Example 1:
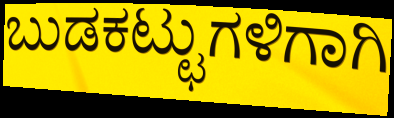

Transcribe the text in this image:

ಬುಡಕಟ್ಟುಗಳಿಗಾಗಿ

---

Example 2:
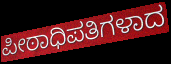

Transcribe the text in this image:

ಪೀಠಾಧಿಪತಿಗಳಾದ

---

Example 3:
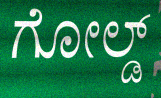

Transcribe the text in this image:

ಗೋಲ್ಡ್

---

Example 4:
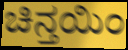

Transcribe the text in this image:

ಚಿನ್ತಯಿಂ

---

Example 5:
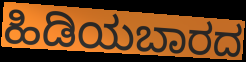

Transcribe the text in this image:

ಹಿಡಿಯಬಾರದ